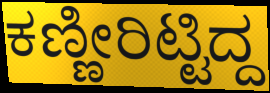
ಕಣ್ಣೀರಿಟ್ಟಿದ್ದ